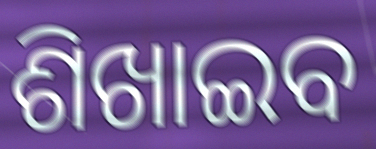
ଶିଖାଇବ